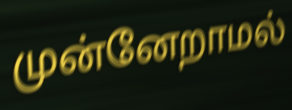
முன்னேறாமல்